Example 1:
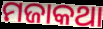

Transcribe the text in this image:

ମଜାକଥା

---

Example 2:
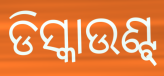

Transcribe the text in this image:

ଡିସ୍କାଉଣ୍ଟ୍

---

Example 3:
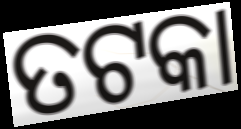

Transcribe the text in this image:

ତଟକା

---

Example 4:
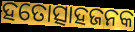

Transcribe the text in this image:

ହତୋତ୍ସାହଜନକ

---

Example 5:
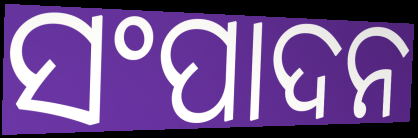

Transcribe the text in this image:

ସଂପାଦନ